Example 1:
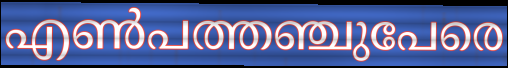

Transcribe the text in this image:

എൺപത്തഞ്ചുപേരെ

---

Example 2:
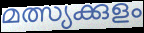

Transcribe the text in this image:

മത്സ്യക്കുളം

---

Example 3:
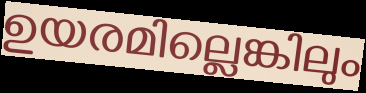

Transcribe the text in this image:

ഉയരമില്ലെങ്കിലും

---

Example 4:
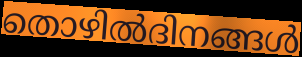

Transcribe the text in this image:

തൊഴിൽദിനങ്ങൾ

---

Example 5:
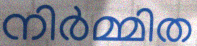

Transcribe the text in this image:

നിർമ്മിത